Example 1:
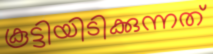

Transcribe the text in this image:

കൂട്ടിയിടിക്കുന്നത്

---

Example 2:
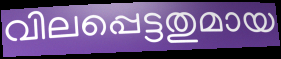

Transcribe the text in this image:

വിലപ്പെട്ടതുമായ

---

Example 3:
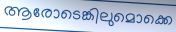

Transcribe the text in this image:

ആരോടെങ്കിലുമൊക്കെ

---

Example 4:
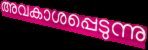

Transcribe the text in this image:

അവകാശപ്പെടുന്നു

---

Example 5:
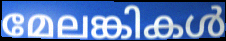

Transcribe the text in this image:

മേലങ്കികൾ